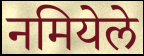
नमियेले